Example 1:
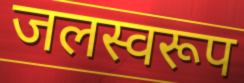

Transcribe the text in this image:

जलस्वरूप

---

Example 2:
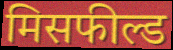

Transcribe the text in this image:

मिसफील्ड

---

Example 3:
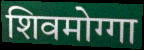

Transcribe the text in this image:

शिवमोग्गा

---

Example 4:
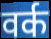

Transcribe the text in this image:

वर्क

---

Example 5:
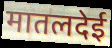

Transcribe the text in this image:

मातलदेई